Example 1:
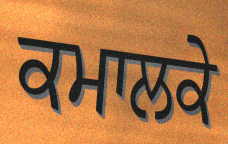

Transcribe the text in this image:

ਕਮਾਲਕੇ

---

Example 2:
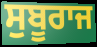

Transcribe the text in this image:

ਸੁਬੂਰਾਜ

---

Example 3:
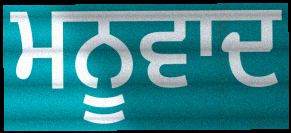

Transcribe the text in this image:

ਮਨੂਵਾਦ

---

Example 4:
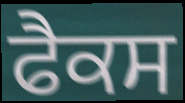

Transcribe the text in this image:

ਫੈਕਸ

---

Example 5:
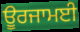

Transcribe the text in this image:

ਊਰਜਾਮਈ